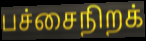
பச்சைநிறக்